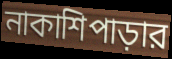
নাকাশিপাড়ার